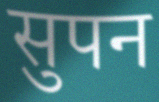
सुपन